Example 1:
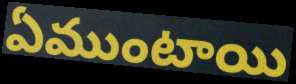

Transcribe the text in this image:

ఏముంటాయి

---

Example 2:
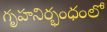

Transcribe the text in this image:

గృహనిర్భంధంలో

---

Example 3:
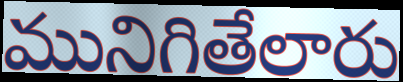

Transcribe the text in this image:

మునిగితేలారు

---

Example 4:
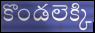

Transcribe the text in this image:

కొండలెక్కి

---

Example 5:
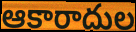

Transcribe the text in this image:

ఆకారాదుల